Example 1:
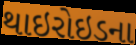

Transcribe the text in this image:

થાઇરોઇડના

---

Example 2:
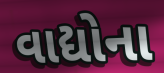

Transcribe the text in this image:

વાદ્યોના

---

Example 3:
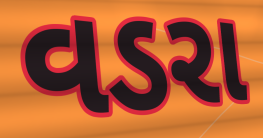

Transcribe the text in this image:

વડરા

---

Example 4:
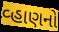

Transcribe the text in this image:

વ્હાણનો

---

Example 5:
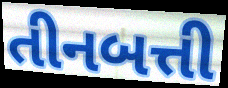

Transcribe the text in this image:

તીનબત્તી